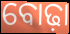
ବୋଢ଼ା